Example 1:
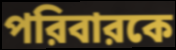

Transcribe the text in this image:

পরিবারকে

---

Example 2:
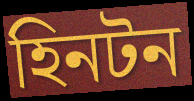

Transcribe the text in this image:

হিনটন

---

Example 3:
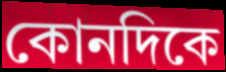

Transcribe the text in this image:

কোনদিকে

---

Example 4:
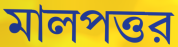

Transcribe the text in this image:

মালপত্তর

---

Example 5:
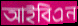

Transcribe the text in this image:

আইবিএন